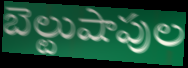
బెల్టుషాపుల